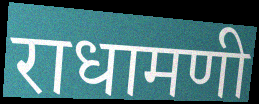
राधामणी